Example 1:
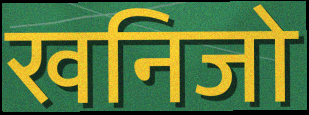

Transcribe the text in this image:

खनिजो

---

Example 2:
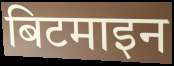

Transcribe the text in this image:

बिटमाइन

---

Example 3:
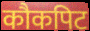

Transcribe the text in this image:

कौकपिट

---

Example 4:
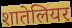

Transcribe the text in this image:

शातेलियर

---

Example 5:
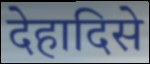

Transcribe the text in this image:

देहादिसे